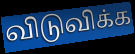
விடுவிக்க